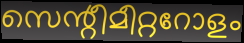
സെന്റീമീറ്ററോളം